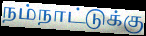
நம்நாட்டுக்கு